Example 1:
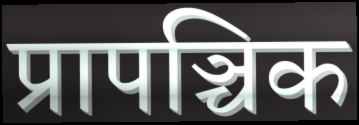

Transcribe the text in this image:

प्रापञ्चिक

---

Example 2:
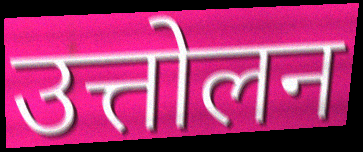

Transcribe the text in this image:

उत्तोलन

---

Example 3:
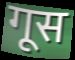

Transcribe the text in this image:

गूस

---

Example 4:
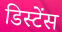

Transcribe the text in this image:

डिस्टेंस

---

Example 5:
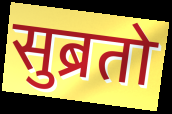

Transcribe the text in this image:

सुब्रतो